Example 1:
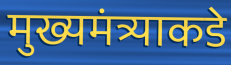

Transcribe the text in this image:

मुख्यमंत्र्याकडे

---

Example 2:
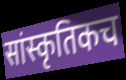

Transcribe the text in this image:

सांस्कृतिकच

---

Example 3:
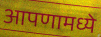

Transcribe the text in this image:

आपणामध्ये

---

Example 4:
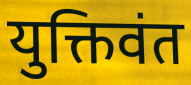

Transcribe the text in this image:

युक्तिवंत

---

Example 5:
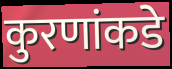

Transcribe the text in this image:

कुरणांकडे